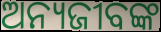
ଅନ୍ୟଜୀବଙ୍କ